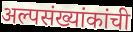
अल्पसंख्यांकांची